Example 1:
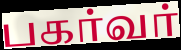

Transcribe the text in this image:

பகர்வர்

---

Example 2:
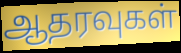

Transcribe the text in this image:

ஆதரவுகள்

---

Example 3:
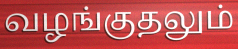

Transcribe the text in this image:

வழங்குதலும்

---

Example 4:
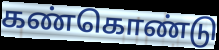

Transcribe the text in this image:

கண்கொண்டு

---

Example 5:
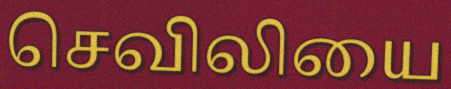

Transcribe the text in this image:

செவிலியை